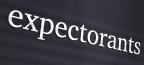
expectorants